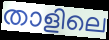
താളിലെ